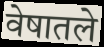
वेषातले